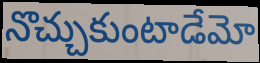
నొచ్చుకుంటాడేమో